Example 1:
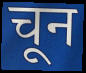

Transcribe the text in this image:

चून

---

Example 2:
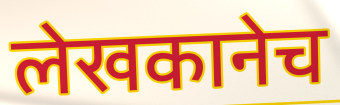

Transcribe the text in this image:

लेखकानेच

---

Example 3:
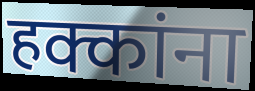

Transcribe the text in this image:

हक्कांना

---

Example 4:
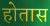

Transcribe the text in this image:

होतास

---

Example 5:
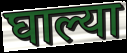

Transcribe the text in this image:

घाल्या